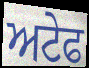
ਅਟੇਫ